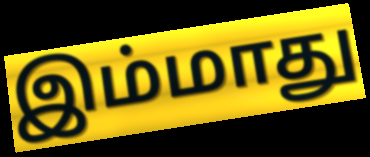
இம்மாது